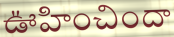
ఊహించిందా